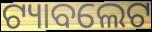
ଟ୍ୟାବଲେଟ